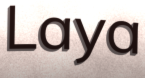
Laya